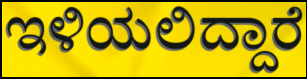
ಇಳಿಯಲಿದ್ದಾರೆ